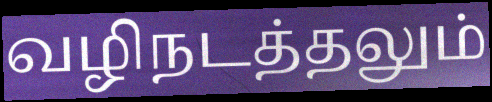
வழிநடத்தலும்